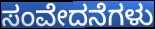
ಸಂವೇದನೆಗಳು